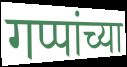
गप्पांच्या